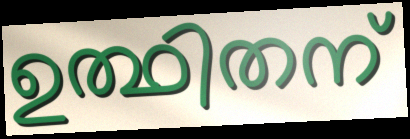
ഉത്ഥിതന്